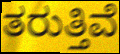
ತರುತ್ತಿವೆ